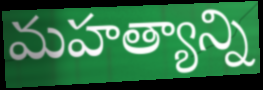
మహత్యాన్ని